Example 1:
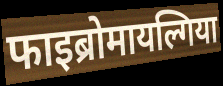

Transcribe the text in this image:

फाइब्रोमायल्गिया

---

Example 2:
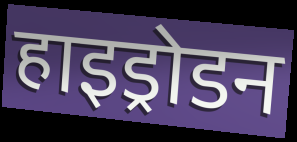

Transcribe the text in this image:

हाइड्रोडन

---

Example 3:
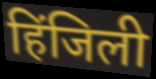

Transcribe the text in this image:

हिंजिली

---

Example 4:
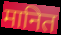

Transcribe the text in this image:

मानित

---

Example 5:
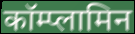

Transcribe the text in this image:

कॉम्प्लामिन